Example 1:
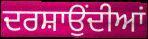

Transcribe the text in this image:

ਦਰਸ਼ਾਉਂਦੀਆਂ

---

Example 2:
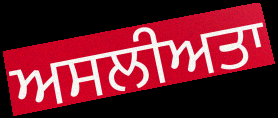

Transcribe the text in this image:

ਅਸਲੀਅਤਾ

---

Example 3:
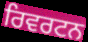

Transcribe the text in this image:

ਰਿਵਰਟਨ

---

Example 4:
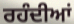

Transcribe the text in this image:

ਰਹੰਦੀਆਂ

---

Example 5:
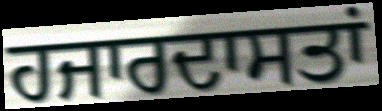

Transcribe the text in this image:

ਹਜਾਰਦਾਸਤਾਂ